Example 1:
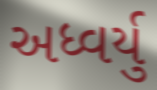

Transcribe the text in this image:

અધ્વર્યુ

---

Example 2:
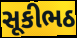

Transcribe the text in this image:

સૂકીભઠ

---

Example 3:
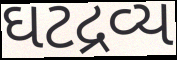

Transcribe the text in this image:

ઘટદ્રવ્ય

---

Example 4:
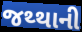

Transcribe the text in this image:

જથ્થાની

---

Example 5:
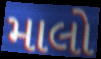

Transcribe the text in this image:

માલો